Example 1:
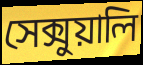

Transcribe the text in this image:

সেক্সুয়ালি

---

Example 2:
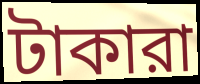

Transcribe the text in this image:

টাকারা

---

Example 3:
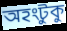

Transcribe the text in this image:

অহংটুকু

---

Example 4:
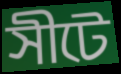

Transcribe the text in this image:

সীটে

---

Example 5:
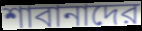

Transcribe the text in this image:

শাবানাদের